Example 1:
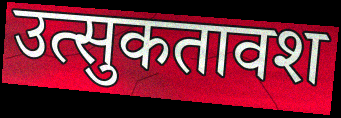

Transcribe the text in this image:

उत्सुकतावश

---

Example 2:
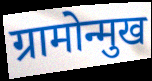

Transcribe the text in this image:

ग्रामोन्मुख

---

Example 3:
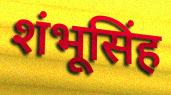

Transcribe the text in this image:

शंभूसिंह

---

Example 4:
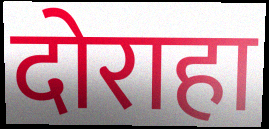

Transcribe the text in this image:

दोराहा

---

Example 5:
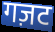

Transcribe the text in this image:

गज़ट